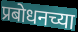
प्रबोधनच्या